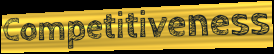
Competitiveness